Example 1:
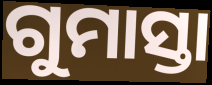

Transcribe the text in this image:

ଗୁମାସ୍ତା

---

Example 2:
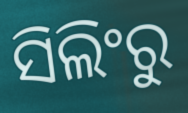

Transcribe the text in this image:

ସିଲିଂରୁ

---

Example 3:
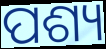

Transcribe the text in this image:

ପଶ୍ୟ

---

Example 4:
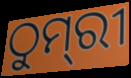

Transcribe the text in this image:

ଠୁମ୍‌ରୀ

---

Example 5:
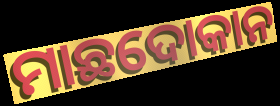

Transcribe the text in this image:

ମାଛଦୋକାନ